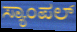
ಸ್ಯಾಂಪಲ್